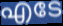
എടേ